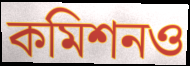
কমিশনও